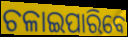
ଚଳାଇପାରିବେ